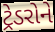
ટ્રેડરોને